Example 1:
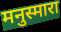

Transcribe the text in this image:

मनुस्मारा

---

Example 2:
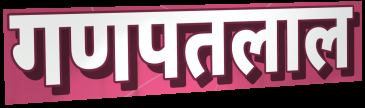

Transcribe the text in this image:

गणपतलाल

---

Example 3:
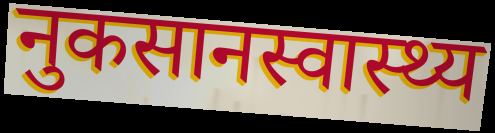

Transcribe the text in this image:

नुकसानस्वास्थ्य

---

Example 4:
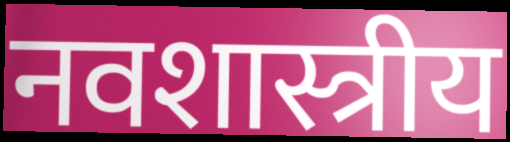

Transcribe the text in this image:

नवशास्त्रीय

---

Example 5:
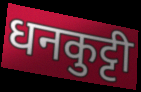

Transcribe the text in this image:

धनकुट्टी